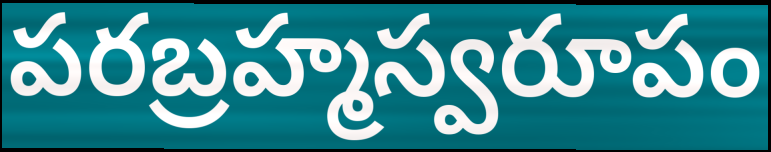
పరబ్రహ్మస్వరూపం